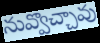
నువ్వొచ్చావు